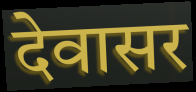
देवासर